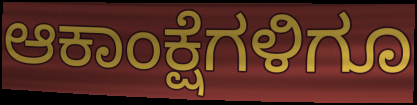
ಆಕಾಂಕ್ಷೆಗಳಿಗೂ